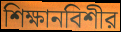
শিক্ষানবিশীর